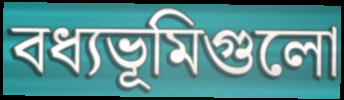
বধ্যভূমিগুলো